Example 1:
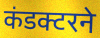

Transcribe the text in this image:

कंडक्टरने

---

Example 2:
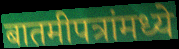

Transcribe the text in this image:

बातमीपत्रांमध्ये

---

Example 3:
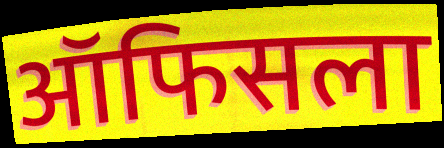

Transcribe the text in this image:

ऑफिसला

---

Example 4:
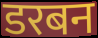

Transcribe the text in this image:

डरबन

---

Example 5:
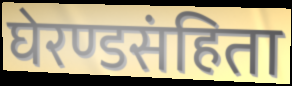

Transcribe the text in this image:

घेरण्डसंहिता